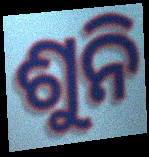
ଶୁନି